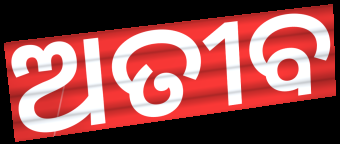
ଅତୀବ